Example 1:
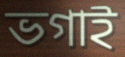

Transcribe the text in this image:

ভগাই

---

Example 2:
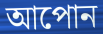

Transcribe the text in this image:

আপোন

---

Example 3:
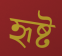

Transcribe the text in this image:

হৃষ্ট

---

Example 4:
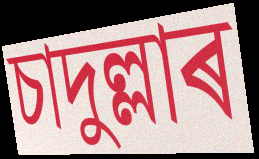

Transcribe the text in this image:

চাদুল্লাৰ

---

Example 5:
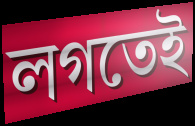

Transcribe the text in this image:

লগতেই